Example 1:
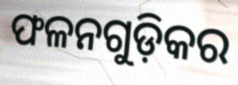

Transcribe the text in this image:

ଫଳନଗୁଡ଼ିକର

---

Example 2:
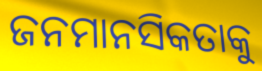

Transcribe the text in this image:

ଜନମାନସିକତାକୁ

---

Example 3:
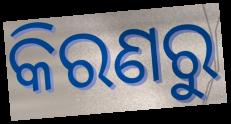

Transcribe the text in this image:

କିରଣରୁ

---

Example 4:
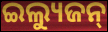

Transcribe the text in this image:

ଇଲ୍ୟୁଜନ୍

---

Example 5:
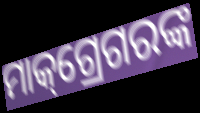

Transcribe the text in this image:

ମାକ୍‌ଗ୍ରେଗରଙ୍କ